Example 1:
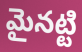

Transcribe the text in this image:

మైనట్టి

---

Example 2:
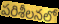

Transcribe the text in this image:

పరిశీలనలో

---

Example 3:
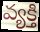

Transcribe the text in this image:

వ్యక్తి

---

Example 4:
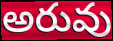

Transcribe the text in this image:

అరువు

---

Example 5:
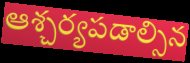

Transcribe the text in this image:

ఆశ్చర్యపడాల్సిన